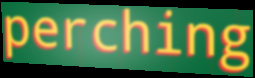
perching